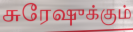
சுரேஷுக்கும்